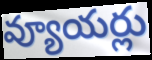
వ్యూయర్లు